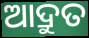
ଆଦ୍ରୁତ